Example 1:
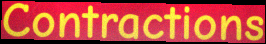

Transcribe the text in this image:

Contractions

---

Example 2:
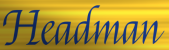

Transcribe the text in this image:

Headman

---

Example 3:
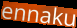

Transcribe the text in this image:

ennaku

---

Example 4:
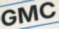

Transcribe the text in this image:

GMC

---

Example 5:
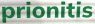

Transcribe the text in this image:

prionitis